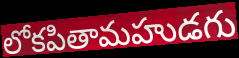
లోకపితామహుడగు